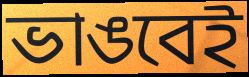
ভাঙবেই